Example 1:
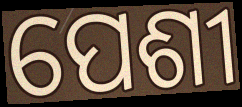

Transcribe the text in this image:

ପେଶୀ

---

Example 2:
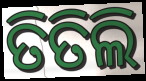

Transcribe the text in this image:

ତିତିଲି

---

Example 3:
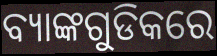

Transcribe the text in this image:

ବ୍ୟାଙ୍କଗୁଡିକରେ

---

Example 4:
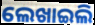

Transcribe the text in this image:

ଲେଖାଇଲି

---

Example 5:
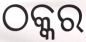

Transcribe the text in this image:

ଠକ୍କର